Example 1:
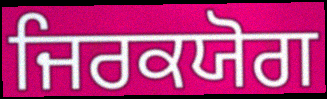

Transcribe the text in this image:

ਜਿਰਕਯੋਗ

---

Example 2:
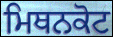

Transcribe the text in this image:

ਮਿਥਨਕੋਟ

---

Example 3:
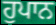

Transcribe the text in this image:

ਹੁਪਾਨ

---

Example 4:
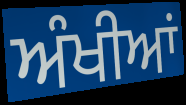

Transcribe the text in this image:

ਅੰਖੀਆਂ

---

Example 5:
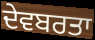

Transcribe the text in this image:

ਦੇਵਬਰਤਾ